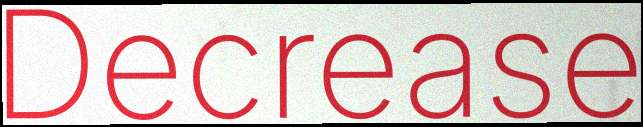
Decrease